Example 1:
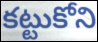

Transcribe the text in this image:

కట్టుకోని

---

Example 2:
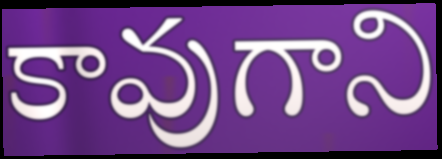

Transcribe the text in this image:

కావుగాని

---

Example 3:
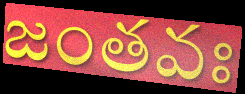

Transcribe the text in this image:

జంతవః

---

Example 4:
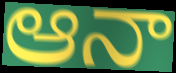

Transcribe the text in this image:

ఆనా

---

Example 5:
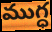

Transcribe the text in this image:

ముగ్ధ